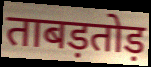
ताबड़तोड़